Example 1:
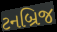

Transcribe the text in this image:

ટનબ્રિજ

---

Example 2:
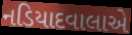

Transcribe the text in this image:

નડિયાદવાલાએ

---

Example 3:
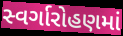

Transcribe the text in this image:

સ્વર્ગારોહણમાં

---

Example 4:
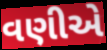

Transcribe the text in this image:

વણીએ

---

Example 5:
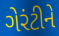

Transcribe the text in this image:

ગેરંટીને